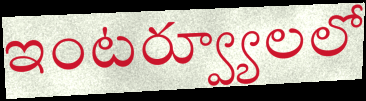
ఇంటర్వ్యూలలో